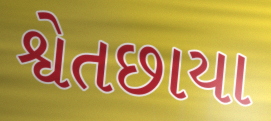
શ્વેતછાયા